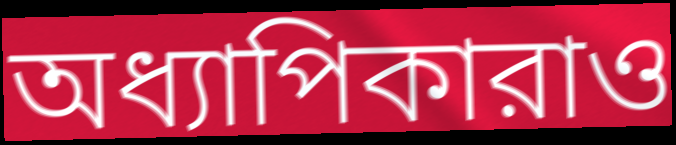
অধ্যাপিকারাও